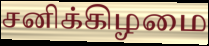
சனிக்கிழமை